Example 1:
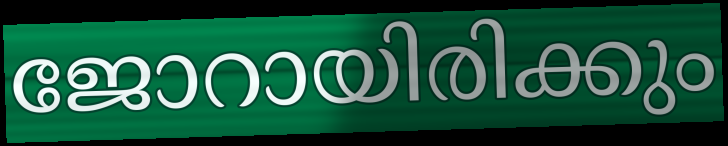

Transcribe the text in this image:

ജോറായിരിക്കും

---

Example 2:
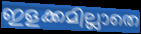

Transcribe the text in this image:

ഇളക്കമില്ലാതെ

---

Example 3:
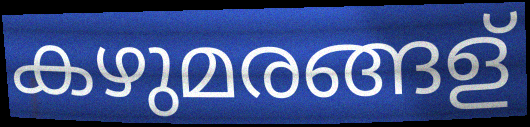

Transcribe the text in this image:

കഴുമരങ്ങള്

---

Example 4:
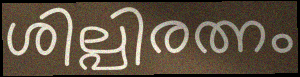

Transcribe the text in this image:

ശില്പിരത്നം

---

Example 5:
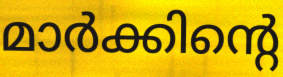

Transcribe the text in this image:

മാർക്കിന്റെ